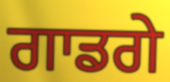
ਗਾਡਗੇ